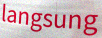
langsung